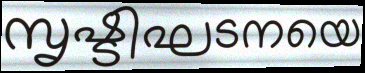
സൃഷ്ടിഘടനയെ